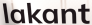
lakant